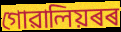
গোৱালিয়ৰৰ